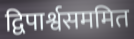
द्विपार्श्वसममित